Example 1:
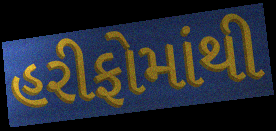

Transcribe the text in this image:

હરીફોમાંથી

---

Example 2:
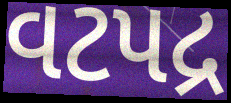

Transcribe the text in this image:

વટપદ્ર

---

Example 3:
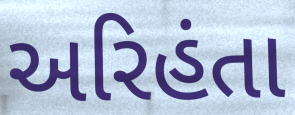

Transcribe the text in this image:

અરિહંતા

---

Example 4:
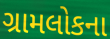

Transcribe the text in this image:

ગ્રામલોકના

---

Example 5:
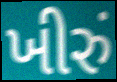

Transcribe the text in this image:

ખીરું